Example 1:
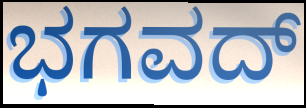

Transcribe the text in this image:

ಭಗವದ್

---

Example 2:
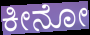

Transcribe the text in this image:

ಕೀನೋ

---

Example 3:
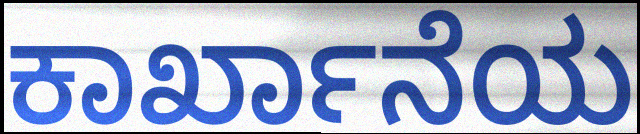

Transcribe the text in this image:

ಕಾರ್ಖಾನೆಯ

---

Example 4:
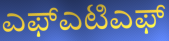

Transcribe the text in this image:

ಎಫ್ಎಟಿಎಫ್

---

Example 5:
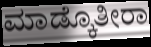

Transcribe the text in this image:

ಮಾಡ್ಕೊತೀರಾ